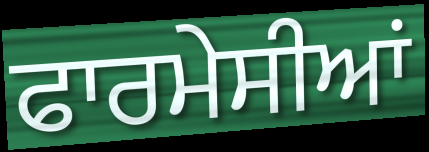
ਫਾਰਮੇਸੀਆਂ